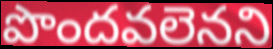
పొందవలెనని